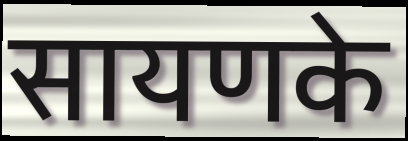
सायणके